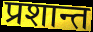
प्रशान्त